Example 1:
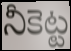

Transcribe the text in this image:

నీకెట్ట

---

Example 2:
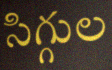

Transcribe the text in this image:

సిగ్గుల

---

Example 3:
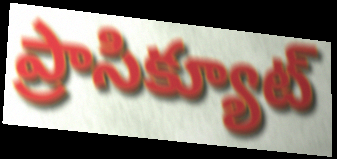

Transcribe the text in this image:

ప్రాసిక్యూట్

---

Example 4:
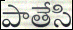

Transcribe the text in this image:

పాతేసి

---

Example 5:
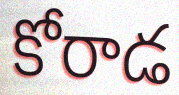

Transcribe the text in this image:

కోరాడ